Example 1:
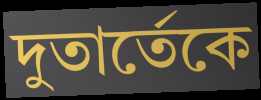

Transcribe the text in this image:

দুতার্তেকে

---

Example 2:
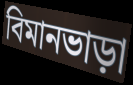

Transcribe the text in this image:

বিমানভাড়া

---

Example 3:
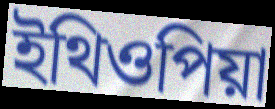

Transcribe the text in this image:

ইথিওপিয়া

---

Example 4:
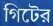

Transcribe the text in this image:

গিটের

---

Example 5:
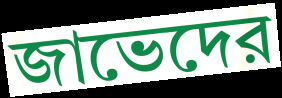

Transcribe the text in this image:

জাভেদের